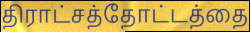
திராட்சத்தோட்டத்தை